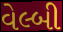
વેલ્બી